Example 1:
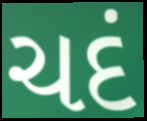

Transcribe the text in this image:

ચદં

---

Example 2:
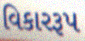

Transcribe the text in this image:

વિકારરૂપ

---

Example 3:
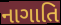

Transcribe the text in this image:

નાગાતિ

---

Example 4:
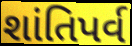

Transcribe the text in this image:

શાંતિપર્વ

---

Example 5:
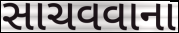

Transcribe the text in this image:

સાચવવાના